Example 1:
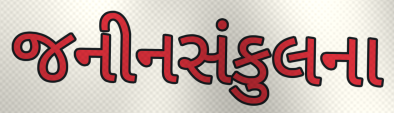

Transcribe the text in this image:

જનીનસંકુલના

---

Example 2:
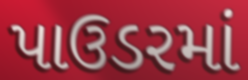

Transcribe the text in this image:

પાઉડરમાં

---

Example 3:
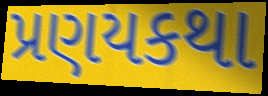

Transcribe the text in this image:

પ્રણયકથા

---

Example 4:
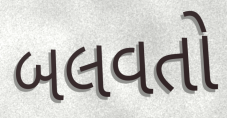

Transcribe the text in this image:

બલવતો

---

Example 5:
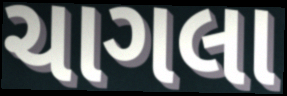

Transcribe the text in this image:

ચાગલા